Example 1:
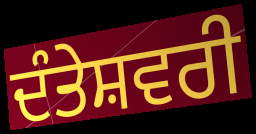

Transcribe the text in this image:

ਦੰਤੇਸ਼ਵਰੀ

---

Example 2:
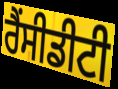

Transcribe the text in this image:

ਰੈਂਸੀਡੀਟੀ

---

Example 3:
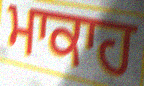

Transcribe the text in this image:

ਮਾਕਾਹ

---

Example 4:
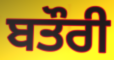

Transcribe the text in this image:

ਬਤੌਰੀ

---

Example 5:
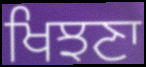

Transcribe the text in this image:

ਖਿਝਣਾ